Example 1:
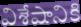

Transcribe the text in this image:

విశేషానికి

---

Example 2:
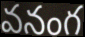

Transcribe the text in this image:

వనంగ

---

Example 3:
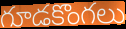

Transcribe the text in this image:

గూడకొంగలు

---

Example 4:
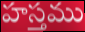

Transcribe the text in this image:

హస్తము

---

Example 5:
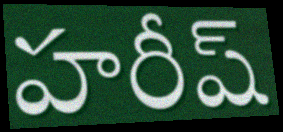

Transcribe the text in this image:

హరీష్